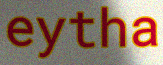
eytha